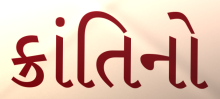
ક્રાંતિનો